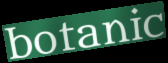
botanic